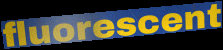
fluorescent